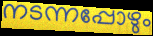
നടന്നപ്പോഴും